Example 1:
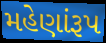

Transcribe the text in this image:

મહેણાંરૂપ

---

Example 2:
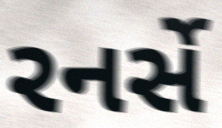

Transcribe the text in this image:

રનર્સે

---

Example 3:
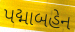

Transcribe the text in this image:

પદ્માબહેન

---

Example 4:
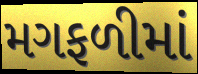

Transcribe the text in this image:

મગફળીમાં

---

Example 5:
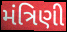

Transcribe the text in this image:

મંત્રિણી